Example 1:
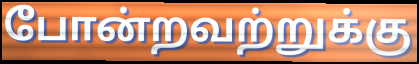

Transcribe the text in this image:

போன்றவற்றுக்கு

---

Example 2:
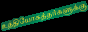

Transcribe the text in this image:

உத்தியோகத்தர்களுக்கு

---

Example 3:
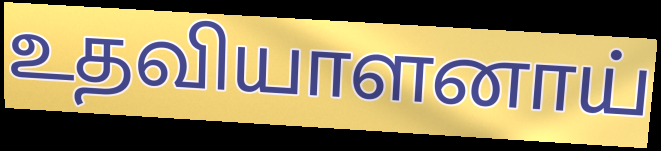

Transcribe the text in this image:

உதவியாளனாய்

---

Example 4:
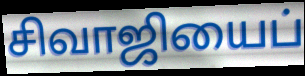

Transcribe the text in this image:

சிவாஜியைப்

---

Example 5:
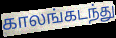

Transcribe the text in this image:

காலங்கடந்து